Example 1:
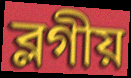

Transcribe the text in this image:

ব্লগীয়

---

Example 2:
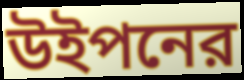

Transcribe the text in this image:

উইপনের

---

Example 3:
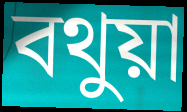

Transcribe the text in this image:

বথুয়া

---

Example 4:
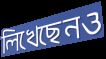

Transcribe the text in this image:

লিখেছেনও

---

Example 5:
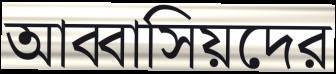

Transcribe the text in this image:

আব্বাসিয়দের